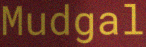
Mudgal